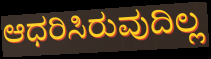
ಆಧರಿಸಿರುವುದಿಲ್ಲ